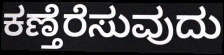
ಕಣ್ತೆರೆಸುವುದು